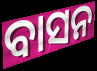
ବାସନ